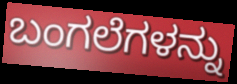
ಬಂಗಲೆಗಳನ್ನು